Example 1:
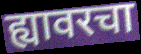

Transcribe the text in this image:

ह्यावरचा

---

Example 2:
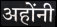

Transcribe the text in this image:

अहोंनी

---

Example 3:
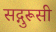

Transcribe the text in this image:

सद्गुरूसी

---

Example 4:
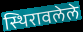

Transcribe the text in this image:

स्थिरावलेले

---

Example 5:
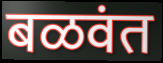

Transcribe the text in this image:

बळवंत